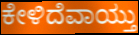
ಕೇಳಿದೆವಾಯ್ತು